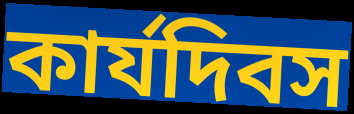
কার্যদিবস